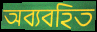
অব্যবহিত